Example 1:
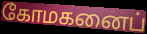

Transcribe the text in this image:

கோமகனைப்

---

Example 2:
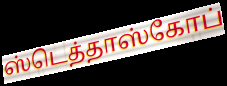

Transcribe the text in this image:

ஸ்டெத்தாஸ்கோப்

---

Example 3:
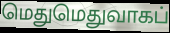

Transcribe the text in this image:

மெதுமெதுவாகப்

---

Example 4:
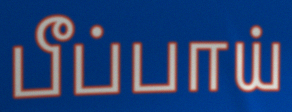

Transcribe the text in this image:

பீப்பாய்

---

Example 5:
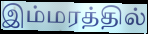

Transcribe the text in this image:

இம்மரத்தில்